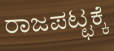
ರಾಜಪಟ್ಟಕ್ಕೆ